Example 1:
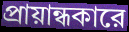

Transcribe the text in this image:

প্রায়ান্ধকারে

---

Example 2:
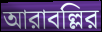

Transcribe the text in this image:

আরাবল্লির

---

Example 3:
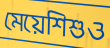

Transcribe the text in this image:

মেয়েশিশুও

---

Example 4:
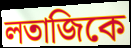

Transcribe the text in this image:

লতাজিকে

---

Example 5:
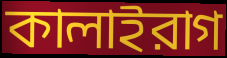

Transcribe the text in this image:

কালাইরাগ